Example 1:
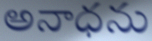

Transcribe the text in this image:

అనాధను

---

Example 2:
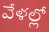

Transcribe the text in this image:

వేళల్లో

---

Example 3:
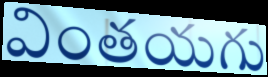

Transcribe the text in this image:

వింతయగు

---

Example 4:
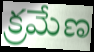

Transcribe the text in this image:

క్రమేణ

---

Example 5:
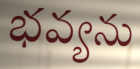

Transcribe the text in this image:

భవ్యను